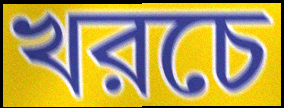
খরচে